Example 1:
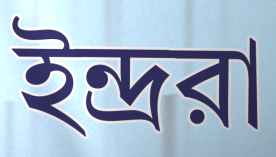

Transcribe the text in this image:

ইন্দ্ররা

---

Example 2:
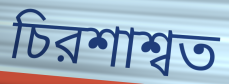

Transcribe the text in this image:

চিরশাশ্বত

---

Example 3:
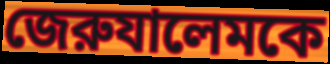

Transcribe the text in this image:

জেরুযালেমকে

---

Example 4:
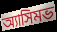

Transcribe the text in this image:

অ্যাসিমভ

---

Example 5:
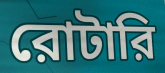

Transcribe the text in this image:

রোটারি